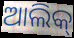
ଆଲିକ୍